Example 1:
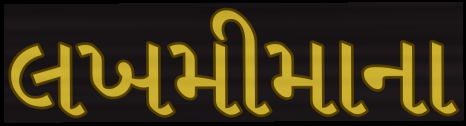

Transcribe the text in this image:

લખમીમાના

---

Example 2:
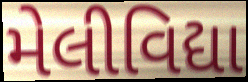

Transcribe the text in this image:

મેલીવિદ્યા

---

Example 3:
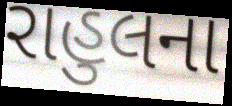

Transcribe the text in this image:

રાહુલના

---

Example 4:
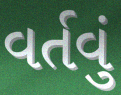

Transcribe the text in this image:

વર્તવું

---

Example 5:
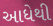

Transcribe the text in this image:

આધેથી